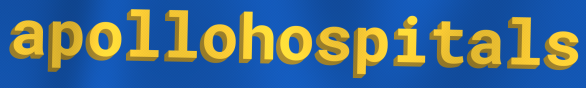
apollohospitals